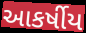
આકર્ષીય